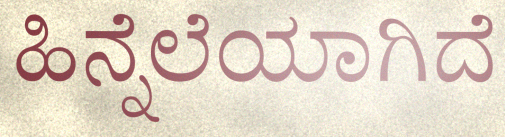
ಹಿನ್ನೆಲೆಯಾಗಿದೆ